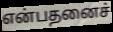
என்பதனைச்